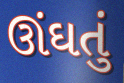
ઊંઘતું